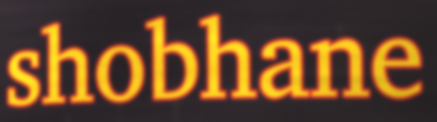
shobhane